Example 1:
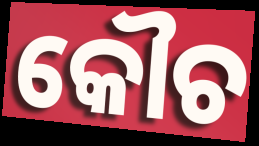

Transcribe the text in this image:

କୌଚ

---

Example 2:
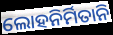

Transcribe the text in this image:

ଲୋହନିର୍ମିତାନି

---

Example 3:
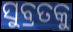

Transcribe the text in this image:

ସୁବ୍ରତକୁ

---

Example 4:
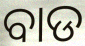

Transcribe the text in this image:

ବାଡ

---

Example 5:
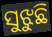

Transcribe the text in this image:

ସୁଝୁଛି